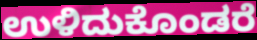
ಉಳಿದುಕೊಂಡರೆ